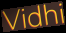
Vidhi